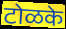
टोळके